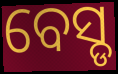
ବେସ୍ଡ